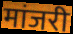
मांजरी